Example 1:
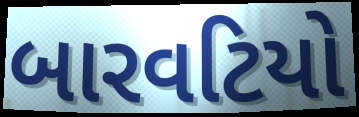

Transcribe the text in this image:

બારવટિયો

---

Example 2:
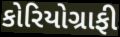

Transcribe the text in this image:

કોરિયોગ્રાફી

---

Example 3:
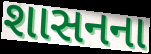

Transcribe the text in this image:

શાસનના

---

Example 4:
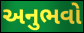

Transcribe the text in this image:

અનુભવો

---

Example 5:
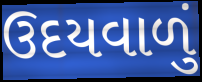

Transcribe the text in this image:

ઉદયવાળું